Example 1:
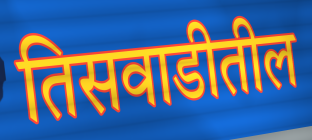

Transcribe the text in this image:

तिसवाडीतील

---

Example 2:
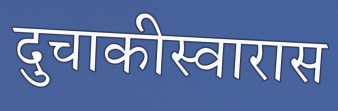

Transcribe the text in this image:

दुचाकीस्वारास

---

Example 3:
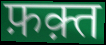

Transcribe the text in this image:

फ़क़्त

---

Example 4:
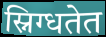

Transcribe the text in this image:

स्निग्धतेत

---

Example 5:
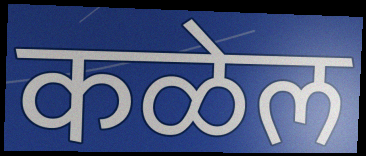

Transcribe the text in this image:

कळेल